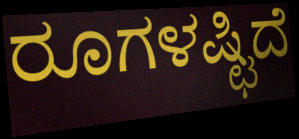
ರೂಗಳಷ್ಟಿದೆ